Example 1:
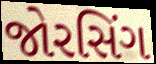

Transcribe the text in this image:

જોરસિંગ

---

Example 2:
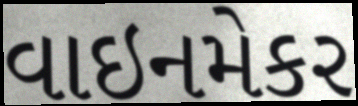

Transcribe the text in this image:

વાઇનમેકર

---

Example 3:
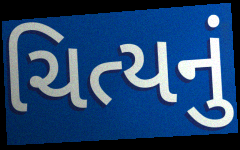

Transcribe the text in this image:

ચિત્યનું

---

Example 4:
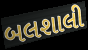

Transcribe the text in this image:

બલશાલી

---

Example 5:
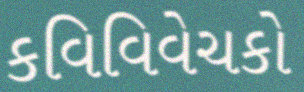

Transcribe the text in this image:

કવિવિવેચકો